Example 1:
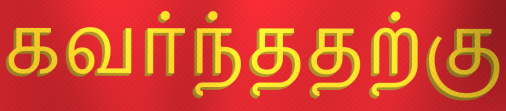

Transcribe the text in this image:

கவர்ந்ததற்கு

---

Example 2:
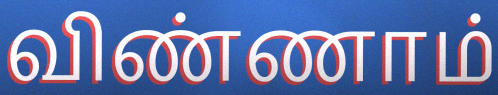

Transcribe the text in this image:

விண்ணாம்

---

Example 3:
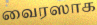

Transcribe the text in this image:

வைரஸாக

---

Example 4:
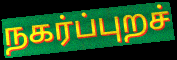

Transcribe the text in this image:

நகர்ப்புறச்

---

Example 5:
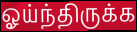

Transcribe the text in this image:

ஓய்ந்திருக்க